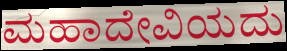
ಮಹಾದೇವಿಯದು